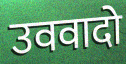
उववादो